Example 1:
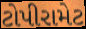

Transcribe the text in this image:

ટોપીરામેટ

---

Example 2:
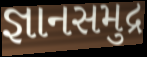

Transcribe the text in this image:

જ્ઞાનસમુદ્ર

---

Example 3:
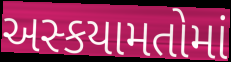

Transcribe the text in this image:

અસ્કયામતોમાં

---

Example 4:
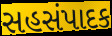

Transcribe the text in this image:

સહસંપાદક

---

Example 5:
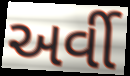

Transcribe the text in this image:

અર્વી